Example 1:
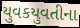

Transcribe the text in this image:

યુવકયુવતીના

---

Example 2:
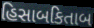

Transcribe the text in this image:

હિસાબકિતાબ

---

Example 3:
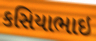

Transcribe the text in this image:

કસિયાભાઇ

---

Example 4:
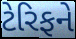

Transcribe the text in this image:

ટેરિફને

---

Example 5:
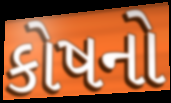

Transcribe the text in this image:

કોષનો